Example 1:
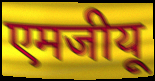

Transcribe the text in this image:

एमजीयू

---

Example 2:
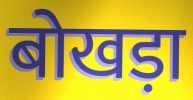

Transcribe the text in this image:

बोखड़ा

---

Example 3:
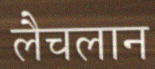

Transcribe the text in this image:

लैचलान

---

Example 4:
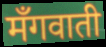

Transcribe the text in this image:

मँगवाती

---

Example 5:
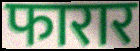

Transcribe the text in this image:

फारार